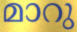
മാറു